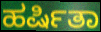
ಹರ್ಷಿತಾ